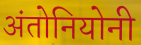
अंतोनियोनी